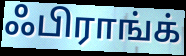
ஃபிராங்க்